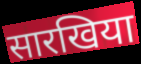
सारखिया